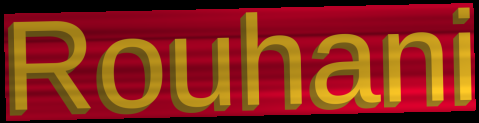
Rouhani